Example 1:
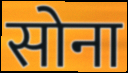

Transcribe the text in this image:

सोना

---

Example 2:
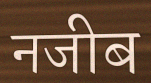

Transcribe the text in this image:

नजीब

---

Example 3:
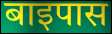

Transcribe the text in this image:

बाइपास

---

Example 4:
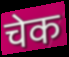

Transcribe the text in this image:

चेक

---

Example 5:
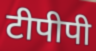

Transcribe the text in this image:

टीपीपी